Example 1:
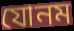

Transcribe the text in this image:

যোনম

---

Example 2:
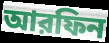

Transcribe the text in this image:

আরফিন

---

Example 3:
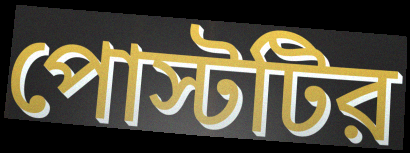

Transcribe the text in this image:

পোস্টটির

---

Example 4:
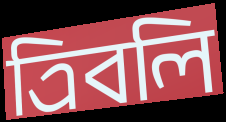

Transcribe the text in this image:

ত্রিবলি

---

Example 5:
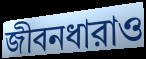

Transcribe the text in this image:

জীবনধারাও